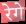
रेगे